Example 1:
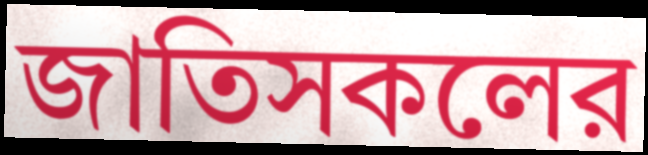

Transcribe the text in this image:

জাতিসকলের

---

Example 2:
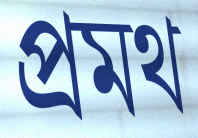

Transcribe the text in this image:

প্রমথ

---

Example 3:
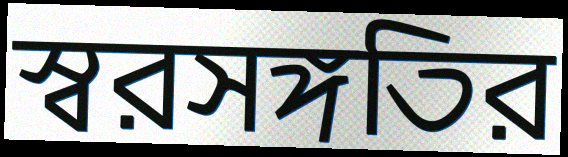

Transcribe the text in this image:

স্বরসঙ্গতির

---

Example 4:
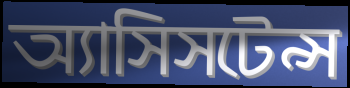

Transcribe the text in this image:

অ্যাসিসটেন্স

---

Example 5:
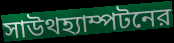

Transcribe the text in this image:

সাউথহ্যাম্পটনের